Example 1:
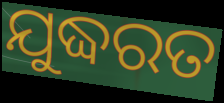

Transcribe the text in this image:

ଯୁଦ୍ଧରତ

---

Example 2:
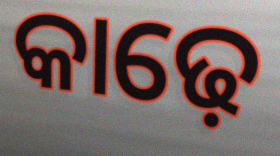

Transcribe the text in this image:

କାଢ଼େ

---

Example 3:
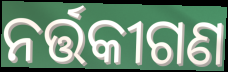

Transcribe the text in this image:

ନର୍ତ୍ତକୀଗଣ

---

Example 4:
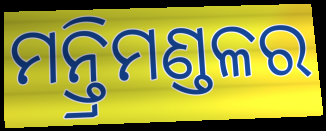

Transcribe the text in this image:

ମନ୍ତ୍ରିମଣ୍ଡଳର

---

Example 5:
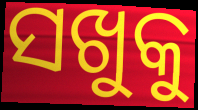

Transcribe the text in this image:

ସଖୁକୁ